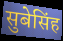
सुबेसिंह